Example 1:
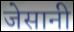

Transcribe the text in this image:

जेसानी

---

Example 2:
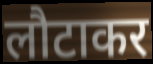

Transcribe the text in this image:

लौटाकर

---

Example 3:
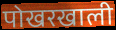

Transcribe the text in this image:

पोखरखाली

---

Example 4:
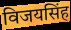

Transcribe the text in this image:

विजयसिंह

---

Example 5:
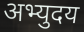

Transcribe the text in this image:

अभ्युदय